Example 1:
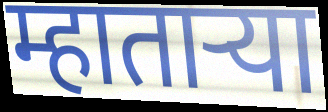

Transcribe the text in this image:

म्हातार्‍या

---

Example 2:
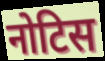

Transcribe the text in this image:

नोटिस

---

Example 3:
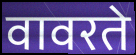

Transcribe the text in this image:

वावरते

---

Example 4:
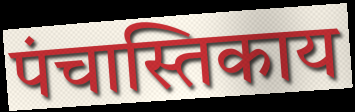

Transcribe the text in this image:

पंचास्तिकाय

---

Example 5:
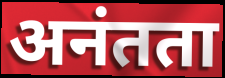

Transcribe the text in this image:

अनंतता